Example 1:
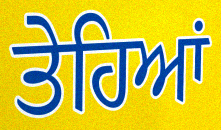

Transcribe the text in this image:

ਤੇਹਿਆਂ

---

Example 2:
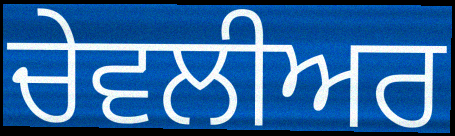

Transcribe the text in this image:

ਚੇਵਲੀਅਰ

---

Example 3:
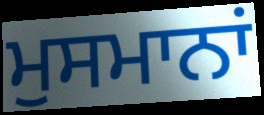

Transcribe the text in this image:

ਮੁਸਮਾਨਾਂ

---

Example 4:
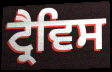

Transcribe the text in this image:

ਟ੍ਰੈਵਿਸ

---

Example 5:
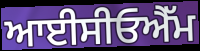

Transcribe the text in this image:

ਆਈਸੀਓਐੱਮ